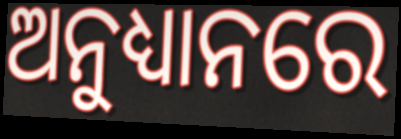
ଅନୁଧ୍ୟାନରେ